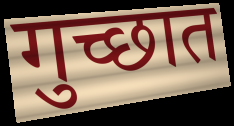
गुच्छात